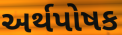
અર્થપોષક